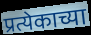
प्रत्येकाच्या